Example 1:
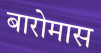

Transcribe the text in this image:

बारोमास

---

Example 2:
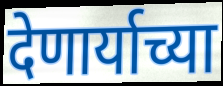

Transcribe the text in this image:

देणार्याच्या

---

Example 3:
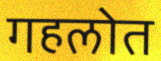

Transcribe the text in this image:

गहलोत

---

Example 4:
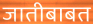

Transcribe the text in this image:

जातीबाबत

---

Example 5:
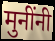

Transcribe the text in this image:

मुनींनी